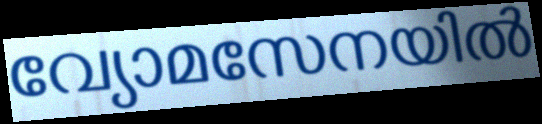
വ്യോമസേനയിൽ